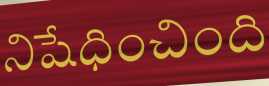
నిషేధించింది